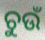
ଚୁଉଁ